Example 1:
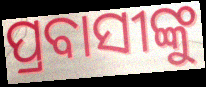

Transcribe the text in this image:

ପ୍ରବାସୀଙ୍କୁ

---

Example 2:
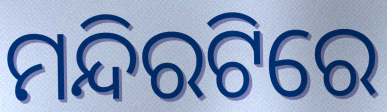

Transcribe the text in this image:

ମନ୍ଦିରଟିରେ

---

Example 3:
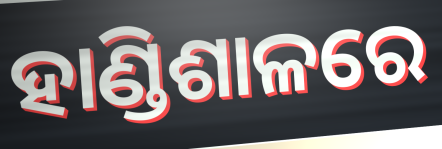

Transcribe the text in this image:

ହାଣ୍ଡିଶାଳରେ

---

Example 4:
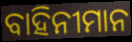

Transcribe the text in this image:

ବାହିନୀମାନ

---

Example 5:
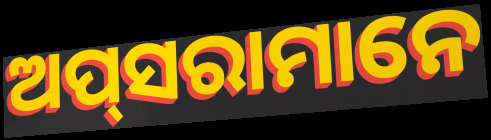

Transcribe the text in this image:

ଅପ୍‌ସରାମାନେ